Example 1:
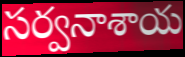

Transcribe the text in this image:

సర్వనాశాయ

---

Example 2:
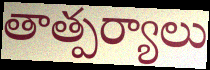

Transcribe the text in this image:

తాత్పర్యాలు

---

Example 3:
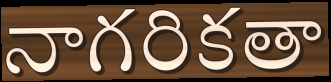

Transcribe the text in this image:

నాగరికతా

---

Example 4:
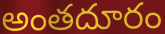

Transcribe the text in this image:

అంతదూరం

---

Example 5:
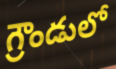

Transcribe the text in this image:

గ్రౌండులో